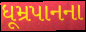
ધૂમ્રપાનના